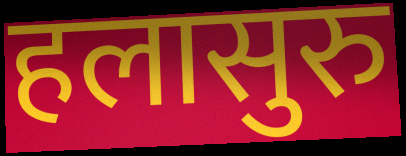
हलासुरु